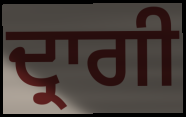
ਦ੍ਰਾਗੀ